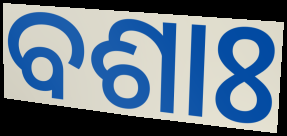
ବଶାଃ